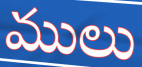
ములు